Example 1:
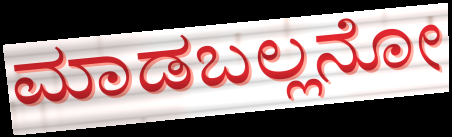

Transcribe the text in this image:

ಮಾಡಬಲ್ಲನೋ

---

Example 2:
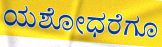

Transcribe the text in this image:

ಯಶೋಧರೆಗೂ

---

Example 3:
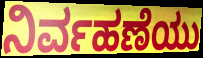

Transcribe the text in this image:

ನಿರ್ವಹಣೆಯು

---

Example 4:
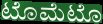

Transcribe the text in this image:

ಟೊಮೆಟೊ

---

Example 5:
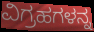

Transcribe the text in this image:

ವಿಗ್ರಹಗಳನ್ನ